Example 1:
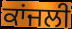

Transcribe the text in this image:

ਕਾਂਜਲੀ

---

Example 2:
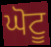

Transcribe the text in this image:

ਘੋਟੂ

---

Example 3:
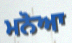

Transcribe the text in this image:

ਮਨੋਆ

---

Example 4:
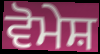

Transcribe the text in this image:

ਵੋਮੇਸ਼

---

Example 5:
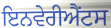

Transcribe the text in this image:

ਇਨਵੇਰੀਐਂਟਸ